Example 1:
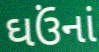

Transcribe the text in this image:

ઘઉંનાં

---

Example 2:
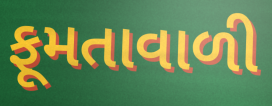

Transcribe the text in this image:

ફૂમતાવાળી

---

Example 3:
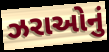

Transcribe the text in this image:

ઝરાઓનું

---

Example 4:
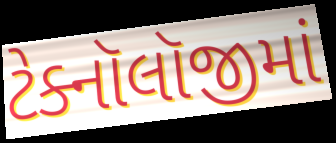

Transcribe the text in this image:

ટેક્નૉલૉજીમાં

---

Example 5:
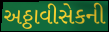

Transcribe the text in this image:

અઠ્ઠાવીસેકની